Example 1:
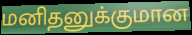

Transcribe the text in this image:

மனிதனுக்குமான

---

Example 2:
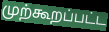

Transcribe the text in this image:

முற்கூறப்பட்ட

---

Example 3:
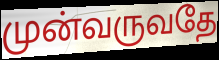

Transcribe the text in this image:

முன்வருவதே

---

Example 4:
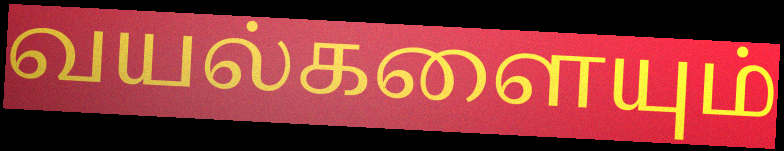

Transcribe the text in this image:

வயல்களையும்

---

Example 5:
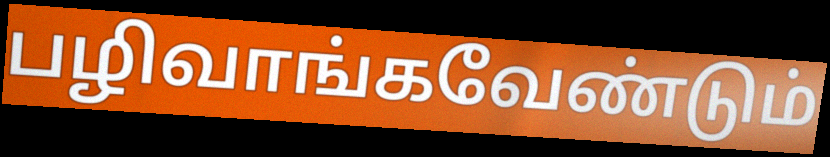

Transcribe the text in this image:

பழிவாங்கவேண்டும்